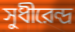
সুধীরেন্দ্র